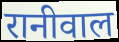
रानीवाल